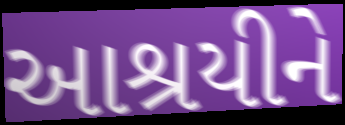
આશ્રયીને